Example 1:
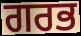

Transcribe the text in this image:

ਗਰਭ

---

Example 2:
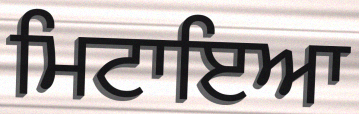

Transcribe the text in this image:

ਮਿਟਾਇਆ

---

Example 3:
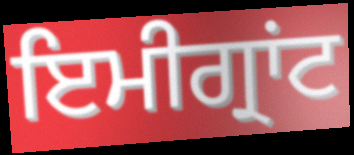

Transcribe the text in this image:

ਇਮੀਗ੍ਰਾਂਟ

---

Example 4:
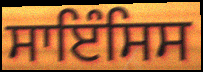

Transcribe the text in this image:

ਸਾਇੰਸਿਸ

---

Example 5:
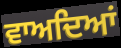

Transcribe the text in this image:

ਵਾਅਦਿਆਂ